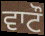
ਵਾਟੌ